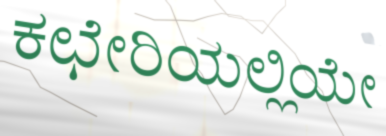
ಕಛೇರಿಯಲ್ಲಿಯೇ